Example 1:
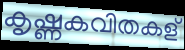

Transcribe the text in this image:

കൃഷ്ണകവിതകള്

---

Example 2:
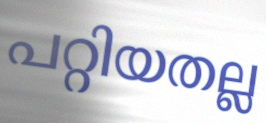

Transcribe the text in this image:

പറ്റിയതല്ല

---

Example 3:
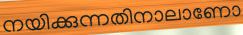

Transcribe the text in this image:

നയിക്കുന്നതിനാലാണോ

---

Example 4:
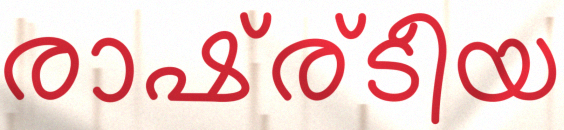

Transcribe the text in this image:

രാഷ്ര്ടീയ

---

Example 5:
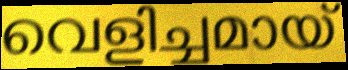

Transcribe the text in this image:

വെളിച്ചമായ്